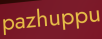
pazhuppu